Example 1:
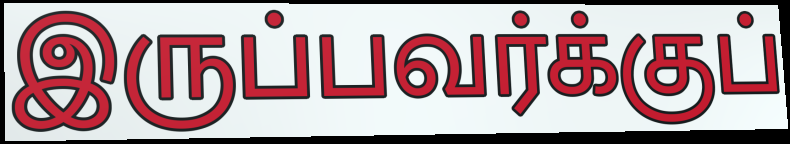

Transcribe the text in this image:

இருப்பவர்க்குப்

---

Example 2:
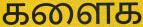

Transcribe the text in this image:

களைக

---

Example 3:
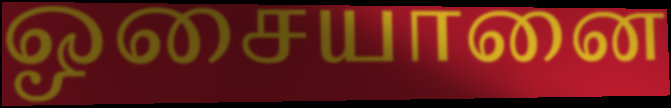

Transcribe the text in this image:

ஓசையானை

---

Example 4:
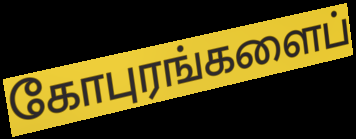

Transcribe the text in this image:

கோபுரங்களைப்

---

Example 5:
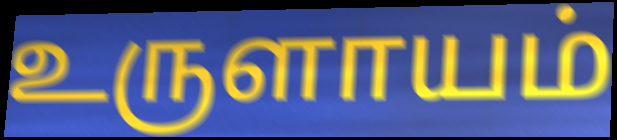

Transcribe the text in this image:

உருளாயம்